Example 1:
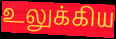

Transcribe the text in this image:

உலுக்கிய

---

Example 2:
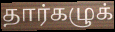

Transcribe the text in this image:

தார்கழுக்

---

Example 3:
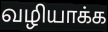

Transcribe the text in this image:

வழியாக்க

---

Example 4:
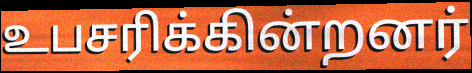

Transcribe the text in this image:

உபசரிக்கின்றனர்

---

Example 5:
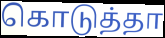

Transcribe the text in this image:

கொடுத்தா